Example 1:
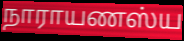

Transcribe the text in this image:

நாராயணஸ்ய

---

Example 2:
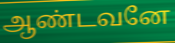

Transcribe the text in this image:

ஆண்டவனே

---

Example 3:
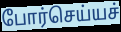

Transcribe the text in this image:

போர்செய்யச்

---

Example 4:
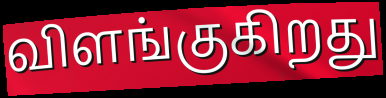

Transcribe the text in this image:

விளங்குகிறது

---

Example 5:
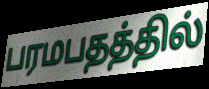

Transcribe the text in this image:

பரமபதத்தில்